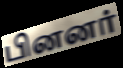
பினனர்